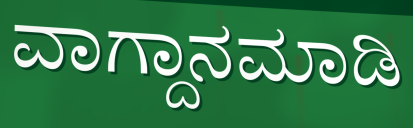
ವಾಗ್ದಾನಮಾಡಿ